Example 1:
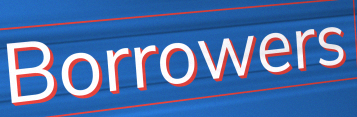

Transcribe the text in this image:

Borrowers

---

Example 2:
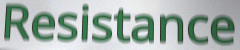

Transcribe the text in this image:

Resistance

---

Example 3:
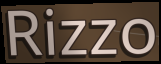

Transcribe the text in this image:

Rizzo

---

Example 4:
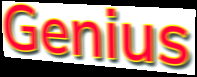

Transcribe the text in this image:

Genius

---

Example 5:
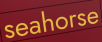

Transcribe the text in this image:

seahorse